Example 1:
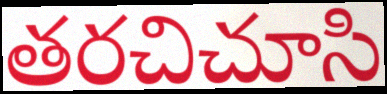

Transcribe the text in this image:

తరచిచూసి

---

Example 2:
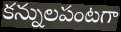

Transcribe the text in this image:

కన్నులపంటగా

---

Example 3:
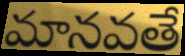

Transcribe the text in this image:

మానవతే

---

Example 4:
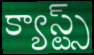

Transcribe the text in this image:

క్యాస్ట్స్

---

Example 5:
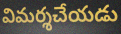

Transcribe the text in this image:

విమర్శచేయడు